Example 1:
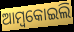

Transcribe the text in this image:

ଆମ୍ବକୋଇଲି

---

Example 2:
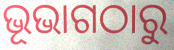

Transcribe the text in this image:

ଭୂଭାଗଠାରୁ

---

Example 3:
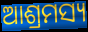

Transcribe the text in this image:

ଆଶ୍ରମସ୍ୟ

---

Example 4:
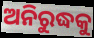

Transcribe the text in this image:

ଅନିରୁଦ୍ଧକୁ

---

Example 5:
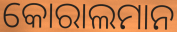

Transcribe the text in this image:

କୋରାଲମାନ